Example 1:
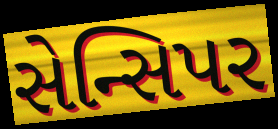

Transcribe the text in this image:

સેન્સિપર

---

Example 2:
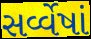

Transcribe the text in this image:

સર્વ્વેષાં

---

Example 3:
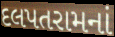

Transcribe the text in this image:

દલપતરામનાં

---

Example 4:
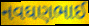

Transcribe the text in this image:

નવઘણભાઈ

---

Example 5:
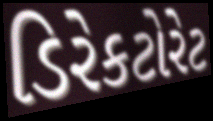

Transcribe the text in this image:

ડિરેકટોરેટ